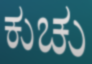
ಕುಚು